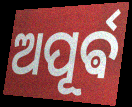
ଅପୂର୍ଵ